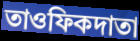
তাওফিকদাতা